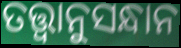
ତତ୍ତ୍ବାନୁସନ୍ଧାନ